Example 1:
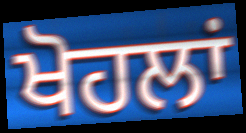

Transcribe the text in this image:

ਖੋਹਲਾਂ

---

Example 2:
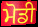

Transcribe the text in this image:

ਮੋਡੀ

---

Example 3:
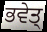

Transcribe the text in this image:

ਭਵੇਤ੍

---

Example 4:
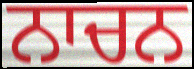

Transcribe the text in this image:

ਨਾਚਨ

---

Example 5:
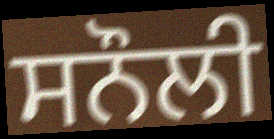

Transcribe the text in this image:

ਸਨੌਲੀ